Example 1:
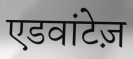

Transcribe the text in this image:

एडवांटेज़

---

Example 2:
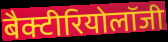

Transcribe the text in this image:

बैक्टीरियोलॉजी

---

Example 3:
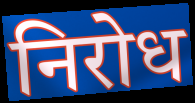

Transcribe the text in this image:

निरोध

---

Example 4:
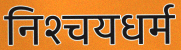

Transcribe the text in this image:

निश्चयधर्म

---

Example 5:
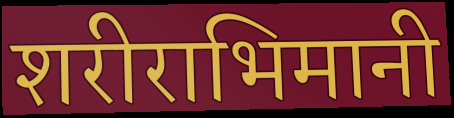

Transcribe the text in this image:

शरीराभिमानी